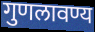
गुणलावण्य